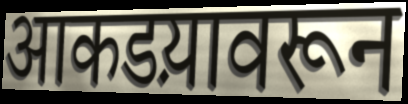
आकडय़ावरून